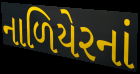
નાળિયેરનાં